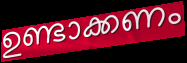
ഉണ്ടാക്കണം